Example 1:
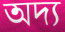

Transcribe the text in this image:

অদ্য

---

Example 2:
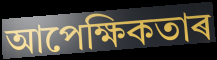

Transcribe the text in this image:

আপেক্ষিকতাৰ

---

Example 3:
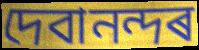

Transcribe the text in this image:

দেবানন্দৰ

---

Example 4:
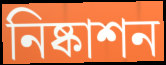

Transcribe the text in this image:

নিষ্কাশন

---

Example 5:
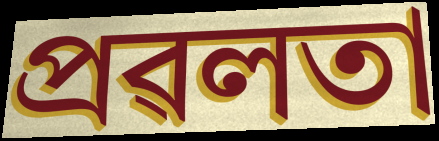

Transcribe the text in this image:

প্ৰৱলতা